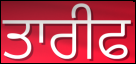
ਤਾਰੀਫ